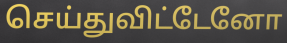
செய்துவிட்டேனோ